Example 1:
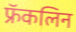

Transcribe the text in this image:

फ्रॅकलिन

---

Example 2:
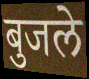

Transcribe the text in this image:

बुजले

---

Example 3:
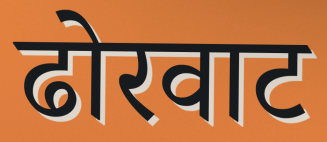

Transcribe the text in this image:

ढोरवाट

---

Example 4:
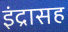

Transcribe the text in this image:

इंद्रासह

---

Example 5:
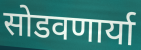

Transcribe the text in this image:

सोडवणार्या